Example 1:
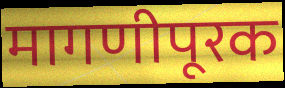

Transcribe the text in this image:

मागणीपूरक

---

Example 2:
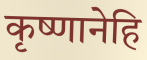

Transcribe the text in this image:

कृष्णानेहि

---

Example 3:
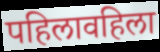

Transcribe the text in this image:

पहिलावहिला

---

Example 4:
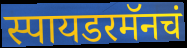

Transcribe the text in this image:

स्पायडरमॅनचं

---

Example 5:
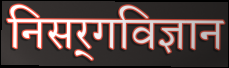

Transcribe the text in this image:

निसर्गविज्ञान